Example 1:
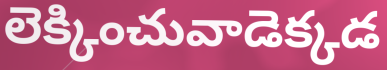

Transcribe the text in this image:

లెక్కించువాడెక్కడ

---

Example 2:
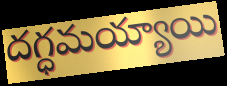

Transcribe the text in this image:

దగ్ధమయ్యాయి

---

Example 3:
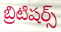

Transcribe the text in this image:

బ్రిటిషర్స్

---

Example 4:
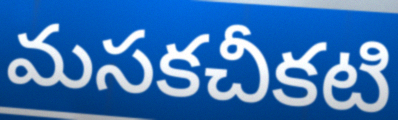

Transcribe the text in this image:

మసకచీకటి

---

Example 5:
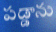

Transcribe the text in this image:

పడ్డాను